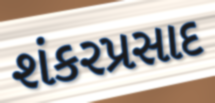
શંકરપ્રસાદ